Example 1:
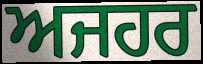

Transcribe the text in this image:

ਅਜਹਰ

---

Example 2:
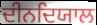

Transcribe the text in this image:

ਦੀਨਦਿਯਾਲ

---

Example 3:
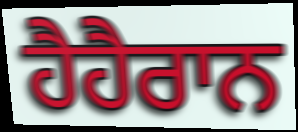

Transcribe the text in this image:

ਹੈਹੈਰਾਨ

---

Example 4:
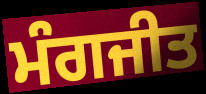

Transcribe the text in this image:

ਮੰਗਜੀਤ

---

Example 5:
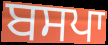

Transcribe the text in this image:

ਬਸਪਾ